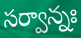
సర్వాన్నః